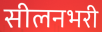
सीलनभरी